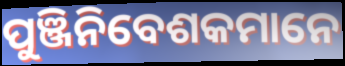
ପୁଞ୍ଜିନିବେଶକମାନେ